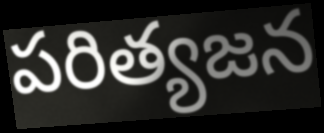
పరిత్యజన